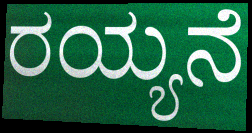
ರಯ್ಯನೆ